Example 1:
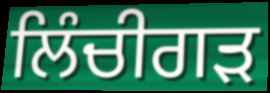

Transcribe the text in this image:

ਲਿੰਚੀਗੜ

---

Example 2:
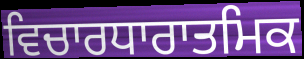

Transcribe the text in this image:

ਵਿਚਾਰਧਾਰਾਤਮਿਕ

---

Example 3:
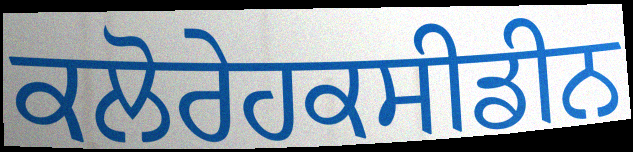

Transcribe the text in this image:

ਕਲੋਰੇਹਕਸੀਡੀਨ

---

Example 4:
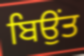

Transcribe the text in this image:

ਬਿਉਂਤ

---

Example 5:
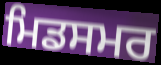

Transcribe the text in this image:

ਮਿਡਸਮਰ